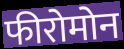
फीरोमोन